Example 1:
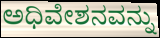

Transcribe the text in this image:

ಅಧಿವೇಶನವನ್ನು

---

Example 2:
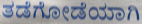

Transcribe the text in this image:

ತಡೆಗೋಡೆಯಾಗಿ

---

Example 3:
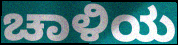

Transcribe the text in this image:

ಚಾಳಿಯ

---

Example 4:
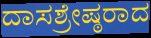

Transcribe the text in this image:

ದಾಸಶ್ರೇಷ್ಠರಾದ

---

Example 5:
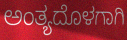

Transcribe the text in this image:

ಅಂತ್ಯದೊಳಗಾಗಿ